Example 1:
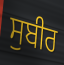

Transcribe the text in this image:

ਸੁਬੀਰ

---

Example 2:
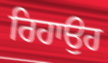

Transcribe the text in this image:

ਰਿਹਾਉਹ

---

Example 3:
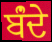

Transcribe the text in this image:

ਬਂੰਦੇ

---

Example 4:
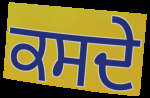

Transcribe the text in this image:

ਕਸਦੇ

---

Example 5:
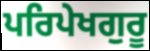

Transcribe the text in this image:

ਪਰਿਪੇਖਗੁਰੂ